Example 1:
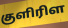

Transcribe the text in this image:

குளிரிள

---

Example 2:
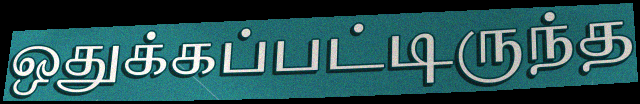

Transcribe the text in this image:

ஒதுக்கப்பட்டிருந்த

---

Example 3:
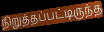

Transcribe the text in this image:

நிறுத்தப்பட்டிருந்த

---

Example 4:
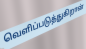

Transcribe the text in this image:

வெளிப்படுத்துகிறான்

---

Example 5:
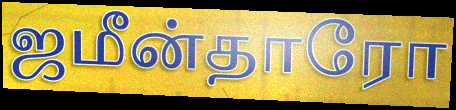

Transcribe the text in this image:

ஜமீன்தாரோ